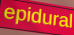
epidural